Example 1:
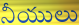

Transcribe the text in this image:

నీయులు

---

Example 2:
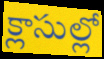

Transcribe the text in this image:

క్లాసుల్లో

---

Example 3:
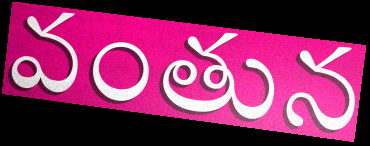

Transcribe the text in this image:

వంతున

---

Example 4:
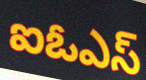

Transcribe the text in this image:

ఐఓఎస్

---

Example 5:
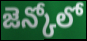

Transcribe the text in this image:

జెన్కోలో